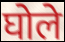
घोले